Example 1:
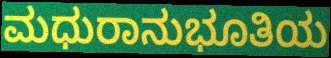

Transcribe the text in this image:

ಮಧುರಾನುಭೂತಿಯ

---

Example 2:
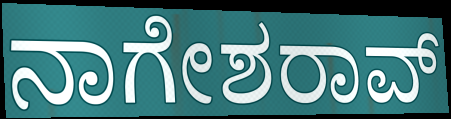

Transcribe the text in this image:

ನಾಗೇಶರಾವ್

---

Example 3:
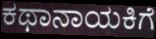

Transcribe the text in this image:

ಕಥಾನಾಯಕಿಗೆ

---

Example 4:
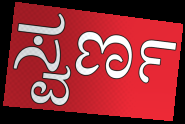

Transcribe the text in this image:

ಸ್ವರ್ಣ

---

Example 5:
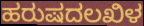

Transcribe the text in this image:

ಹರುಷದಲಖಿಳ